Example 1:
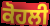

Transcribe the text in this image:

ਕੋਹਲੀ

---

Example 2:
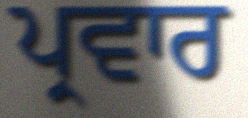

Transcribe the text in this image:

ਪ੍ਰਵਾਰ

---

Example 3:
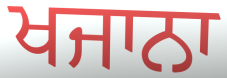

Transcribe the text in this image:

ਖਜਾਨਾ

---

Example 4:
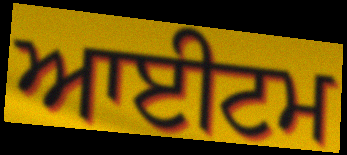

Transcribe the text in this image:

ਆਈਟਮ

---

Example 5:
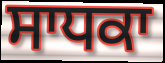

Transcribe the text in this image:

ਸਾਧਕਾ